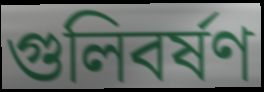
গুলিবর্ষণ